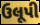
ઉલૂપી